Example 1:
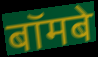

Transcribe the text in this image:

बॉमबे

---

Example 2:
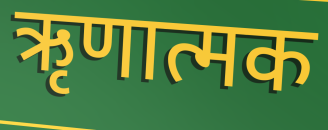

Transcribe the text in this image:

ऋृणात्मक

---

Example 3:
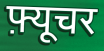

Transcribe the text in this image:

फ़्यूचर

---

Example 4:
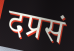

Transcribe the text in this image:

दप्रसं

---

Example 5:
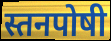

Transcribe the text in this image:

स्तनपोषी